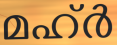
മഹ്ർ